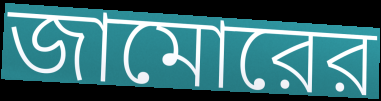
জামোরের